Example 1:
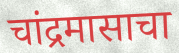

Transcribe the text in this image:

चांद्रमासाचा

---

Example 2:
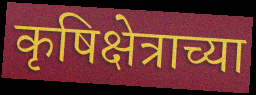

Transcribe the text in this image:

कृषिक्षेत्राच्या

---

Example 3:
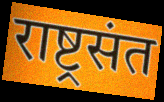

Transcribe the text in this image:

राष्ट्रसंत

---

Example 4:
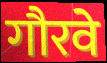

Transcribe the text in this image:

गौरवे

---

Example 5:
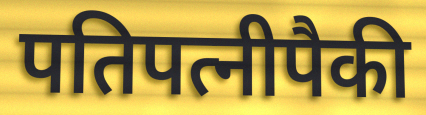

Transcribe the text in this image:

पतिपत्नीपैकी